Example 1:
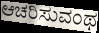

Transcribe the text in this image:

ಆಚರಿಸುವಂಥ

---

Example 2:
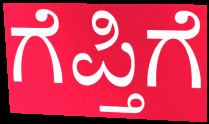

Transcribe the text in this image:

ಗೆಪ್ತಿಗೆ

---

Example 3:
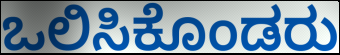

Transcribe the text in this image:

ಒಲಿಸಿಕೊಂಡರು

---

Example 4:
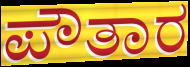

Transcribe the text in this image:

ಪೌತಾರ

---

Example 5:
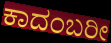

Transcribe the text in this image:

ಕಾದಂಬರೀ